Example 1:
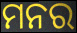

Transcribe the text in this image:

ମନର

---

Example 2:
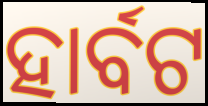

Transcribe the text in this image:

ହାର୍ବଟ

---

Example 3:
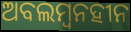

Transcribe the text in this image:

ଅବଲମ୍ବନହୀନ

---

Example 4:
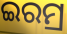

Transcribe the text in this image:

ଇରମ୍ର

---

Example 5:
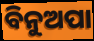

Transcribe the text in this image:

ବିନୁଅପା